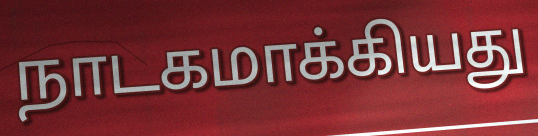
நாடகமாக்கியது